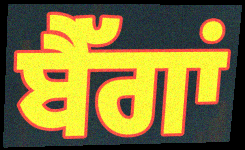
ਬੈੱਗਾਂ